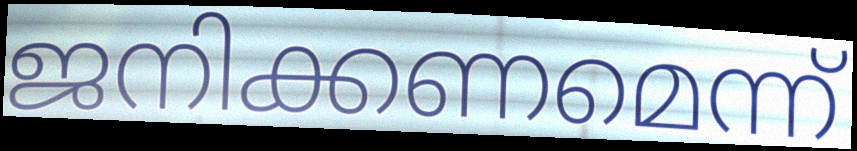
ജനിക്കണമെന്ന്